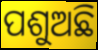
ପଶୁଅଛି